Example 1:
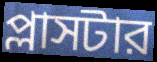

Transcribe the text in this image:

প্লাসটার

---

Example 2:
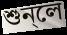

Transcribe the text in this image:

শুন্লে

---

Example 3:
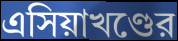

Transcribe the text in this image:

এসিয়াখণ্ডের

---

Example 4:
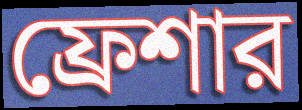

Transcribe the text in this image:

ফ্রেশার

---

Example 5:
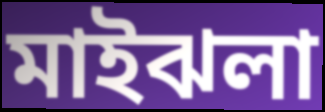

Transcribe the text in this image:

মাইঝলা